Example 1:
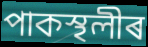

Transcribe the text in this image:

পাকস্থলীৰ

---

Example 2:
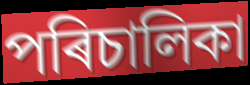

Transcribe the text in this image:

পৰিচালিকা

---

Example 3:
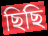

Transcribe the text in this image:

ছিছি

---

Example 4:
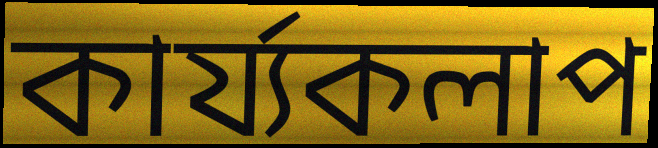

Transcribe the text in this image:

কাৰ্য্যকলাপ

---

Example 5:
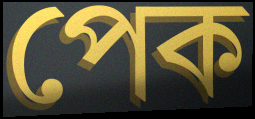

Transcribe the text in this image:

পেক